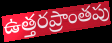
ఉత్తరప్రాంతపు